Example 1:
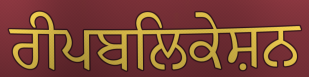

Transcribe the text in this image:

ਰੀਪਬਲਿਕੇਸ਼ਨ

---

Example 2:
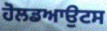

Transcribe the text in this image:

ਹੋਲਡਆਉਟਸ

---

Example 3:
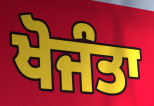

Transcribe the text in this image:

ਖੋਜੰਤਾ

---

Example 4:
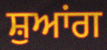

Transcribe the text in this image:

ਸ਼ੁਆਂਗ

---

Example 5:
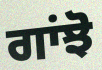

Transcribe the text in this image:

ਗਾਂਝੋ